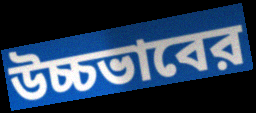
উচ্চভাবের